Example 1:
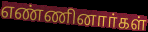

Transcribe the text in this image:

எண்ணினார்கள்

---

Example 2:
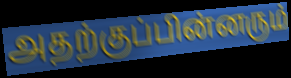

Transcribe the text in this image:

அதற்குப்பின்னரும்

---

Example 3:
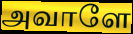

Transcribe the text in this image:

அவாளே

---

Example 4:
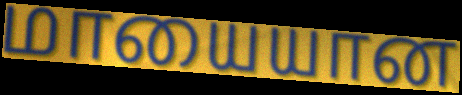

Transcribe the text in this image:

மாயையான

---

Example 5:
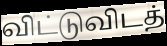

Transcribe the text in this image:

விட்டுவிடத்